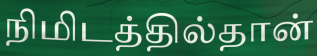
நிமிடத்தில்தான்